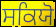
ਸਕਿਯੋ